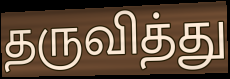
தருவித்து